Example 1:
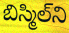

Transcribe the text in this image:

బిస్మిల్‌ని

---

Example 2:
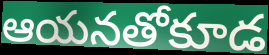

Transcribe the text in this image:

ఆయనతోకూడ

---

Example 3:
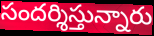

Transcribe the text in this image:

సందర్శిస్తున్నారు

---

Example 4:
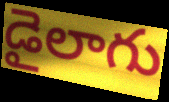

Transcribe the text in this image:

డైలాగు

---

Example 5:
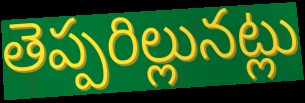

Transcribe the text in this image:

తెప్పరిల్లునట్లు